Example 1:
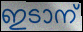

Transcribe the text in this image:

ഇടാന്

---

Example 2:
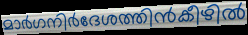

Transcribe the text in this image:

മാർഗനിർദേശത്തിൻകീഴിൽ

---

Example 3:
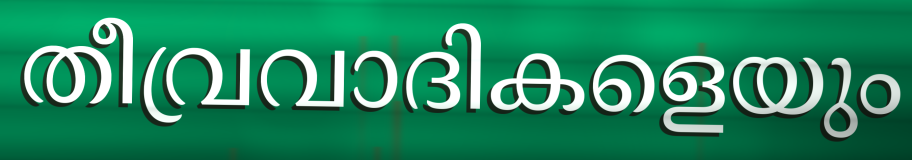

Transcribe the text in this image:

തീവ്രവാദികളെയും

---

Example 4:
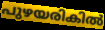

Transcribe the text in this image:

പുഴയരികിൽ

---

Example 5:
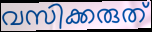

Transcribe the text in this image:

വസിക്കരുത്